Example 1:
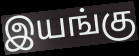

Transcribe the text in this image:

இயங்கு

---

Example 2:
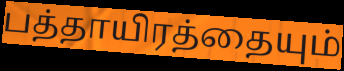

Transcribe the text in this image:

பத்தாயிரத்தையும்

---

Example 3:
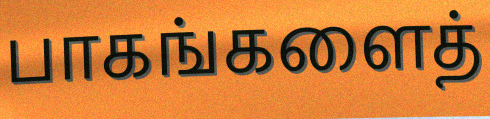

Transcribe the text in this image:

பாகங்களைத்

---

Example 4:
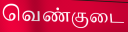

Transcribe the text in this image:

வெண்குடை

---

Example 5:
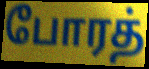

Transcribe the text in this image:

போரத்